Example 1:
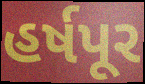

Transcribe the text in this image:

હર્ષપૂર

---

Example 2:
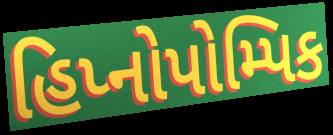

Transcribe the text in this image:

હિપ્નોપોમ્પિક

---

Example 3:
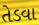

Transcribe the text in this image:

તેડવા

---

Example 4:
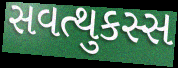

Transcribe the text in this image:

સવત્થુકસ્સ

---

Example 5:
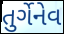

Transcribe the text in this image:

તુર્ગેનેવ